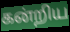
கன்றிய